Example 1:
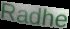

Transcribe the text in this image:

Radhe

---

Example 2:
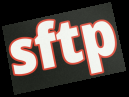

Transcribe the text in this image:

sftp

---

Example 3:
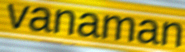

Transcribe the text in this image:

vanaman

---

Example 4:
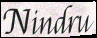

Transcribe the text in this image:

Nindru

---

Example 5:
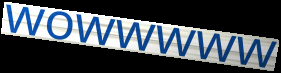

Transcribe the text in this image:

wowwwww